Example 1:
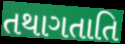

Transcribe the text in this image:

તથાગતાતિ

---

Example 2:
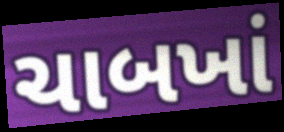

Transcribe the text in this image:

ચાબખાં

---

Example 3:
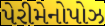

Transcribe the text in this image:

પેરીમેનોપોઝ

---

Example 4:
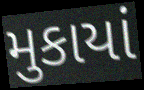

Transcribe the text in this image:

મુકાયાં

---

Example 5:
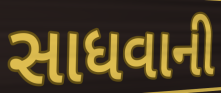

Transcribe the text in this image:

સાધવાની